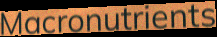
Macronutrients